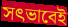
সৎভাবেই